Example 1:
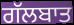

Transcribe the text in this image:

ਗੱਲਬਾਤ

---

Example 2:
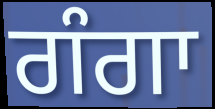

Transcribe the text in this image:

ਗੰਗਾ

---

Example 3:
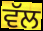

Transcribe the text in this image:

ਵੱਲ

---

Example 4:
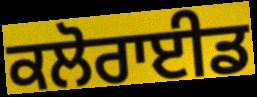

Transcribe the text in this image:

ਕਲੋਰਾਈਡ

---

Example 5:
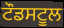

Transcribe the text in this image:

ਟੌਡਸਟੂਲ